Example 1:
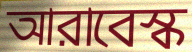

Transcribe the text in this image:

আরাবেস্ক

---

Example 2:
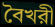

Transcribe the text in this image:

বৈখরী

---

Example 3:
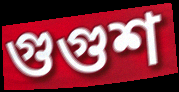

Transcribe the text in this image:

গুগুশ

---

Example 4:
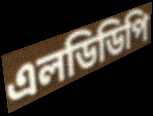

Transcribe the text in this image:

এলডিডিপি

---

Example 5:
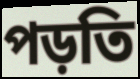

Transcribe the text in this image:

পড়তি